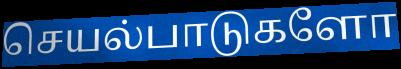
செயல்பாடுகளோ